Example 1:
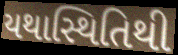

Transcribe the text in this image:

યથાસ્થિતિથી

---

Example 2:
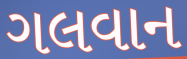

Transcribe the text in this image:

ગલવાન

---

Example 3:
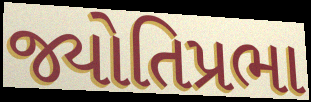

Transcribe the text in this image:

જ્યોતિપ્રભા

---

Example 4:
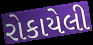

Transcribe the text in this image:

રોકાયેલી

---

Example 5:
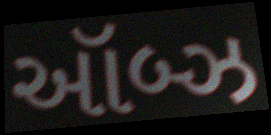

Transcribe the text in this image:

ઑબ્ઝ